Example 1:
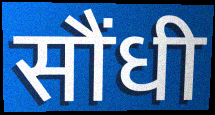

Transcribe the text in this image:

सौंधी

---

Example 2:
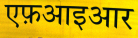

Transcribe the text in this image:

एफ़आइआर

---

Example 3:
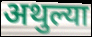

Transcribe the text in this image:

अथुल्या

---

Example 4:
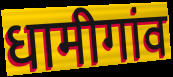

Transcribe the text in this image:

धामीगांव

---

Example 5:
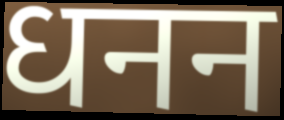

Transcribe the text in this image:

धनन